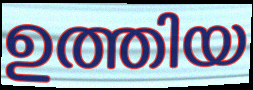
ഉത്തിയ